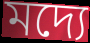
মদ্যে